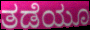
ತಡೆಯೂ